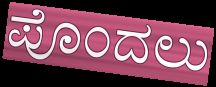
ಪೊಂದಲು